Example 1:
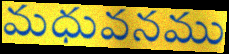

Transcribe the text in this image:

మధువనము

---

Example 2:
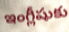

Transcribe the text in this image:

ఇంగ్లీషుకు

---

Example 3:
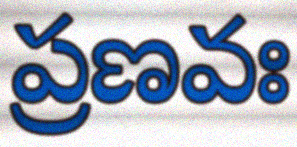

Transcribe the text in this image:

ప్రణవః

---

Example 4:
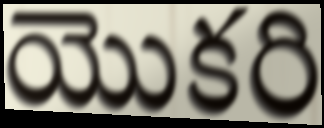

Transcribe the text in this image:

యొకరి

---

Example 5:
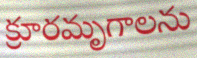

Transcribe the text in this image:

క్రూరమృగాలను